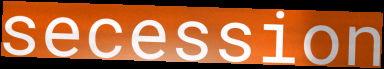
secession